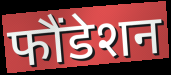
फौंडेशन